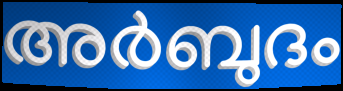
അർബുദം